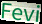
Fevi